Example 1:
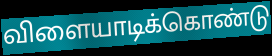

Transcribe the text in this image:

விளையாடிக்கொண்டு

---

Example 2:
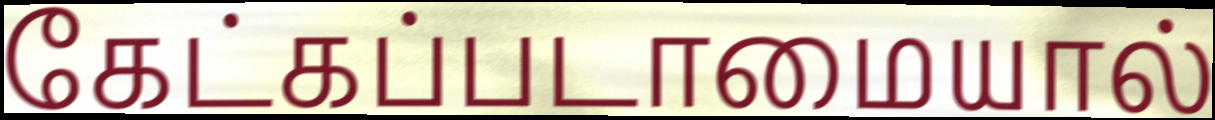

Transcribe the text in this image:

கேட்கப்படாமையால்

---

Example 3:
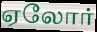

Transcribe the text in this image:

ஏலோர்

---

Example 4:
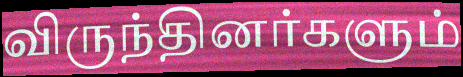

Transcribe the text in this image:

விருந்தினர்களும்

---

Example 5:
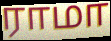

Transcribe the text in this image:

ராமா